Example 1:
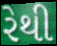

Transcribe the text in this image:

રેથી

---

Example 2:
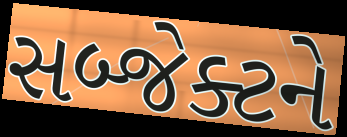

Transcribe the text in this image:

સબ્જેક્ટને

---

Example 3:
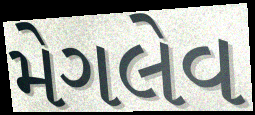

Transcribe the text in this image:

મેગલેવ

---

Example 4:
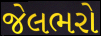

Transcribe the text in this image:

જેલભરો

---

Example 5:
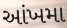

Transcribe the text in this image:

આંખમા